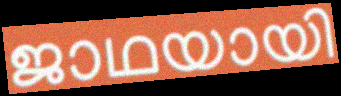
ജാഥയായി